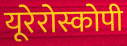
यूरेरोस्कोपी